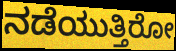
ನಡೆಯುತ್ತಿರೋ